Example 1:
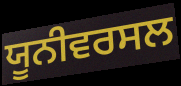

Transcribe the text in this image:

ਯੂਨੀਵਰਸਲ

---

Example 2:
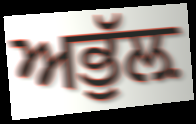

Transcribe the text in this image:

ਅਭੁੱਲ਼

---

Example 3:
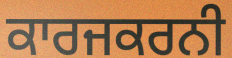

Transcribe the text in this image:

ਕਾਰਜਕਰਨੀ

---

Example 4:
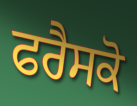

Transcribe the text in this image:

ਫਰੈਸਕੋ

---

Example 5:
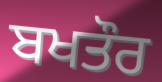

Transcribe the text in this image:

ਬਖਤੌਰ